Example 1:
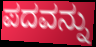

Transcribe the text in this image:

ಪದವನ್ನು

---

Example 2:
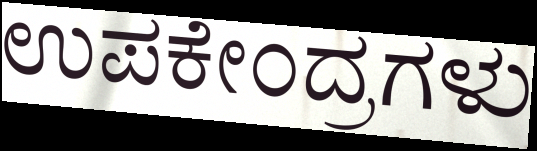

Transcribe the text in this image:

ಉಪಕೇಂದ್ರಗಳು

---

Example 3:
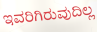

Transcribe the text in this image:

ಇವರಿಗಿರುವುದಿಲ್ಲ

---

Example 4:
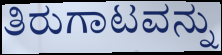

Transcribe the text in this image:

ತಿರುಗಾಟವನ್ನು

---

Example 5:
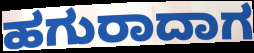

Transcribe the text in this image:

ಹಗುರಾದಾಗ